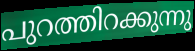
പുറത്തിറക്കുന്നു